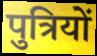
पुत्रियों